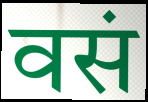
वसं